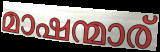
മാഷന്മാര്